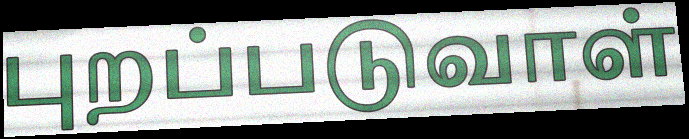
புறப்படுவாள்